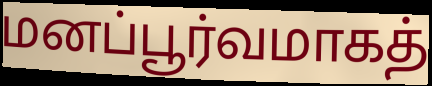
மனப்பூர்வமாகத்